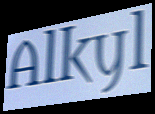
Alkyl